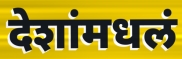
देशांमधलं